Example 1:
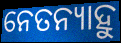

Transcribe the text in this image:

ନେତନ୍ୟାହୁ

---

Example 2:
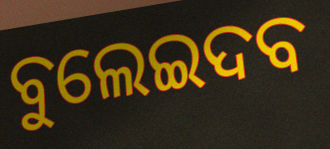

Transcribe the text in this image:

ବୁଲେଇଦବ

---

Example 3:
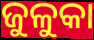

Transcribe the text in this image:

ଜୁଳୁକା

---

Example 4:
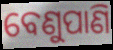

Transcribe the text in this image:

ବେଣୁପାଣି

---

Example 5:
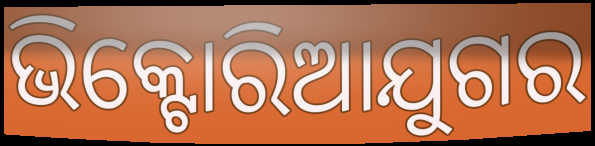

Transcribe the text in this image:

ଭିକ୍ଟୋରିଆଯୁଗର